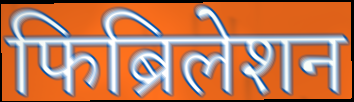
फिब्रिलेशन